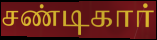
சண்டிகார்